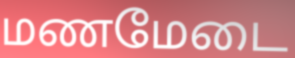
மணமேடை